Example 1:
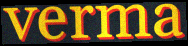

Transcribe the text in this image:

verma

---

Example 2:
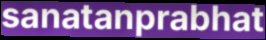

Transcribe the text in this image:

sanatanprabhat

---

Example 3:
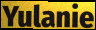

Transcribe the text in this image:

Yulanie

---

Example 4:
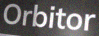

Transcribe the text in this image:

Orbitor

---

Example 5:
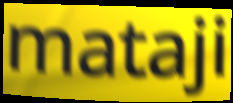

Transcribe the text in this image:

mataji